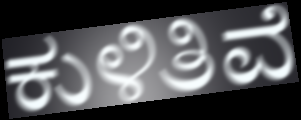
ಕುಳಿತಿವೆ